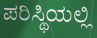
ಪರಿಸ್ಥಿಯಲ್ಲಿ